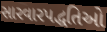
સારવારપદ્ધતિઓ